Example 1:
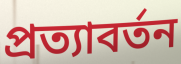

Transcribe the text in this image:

প্ৰত্যাবৰ্তন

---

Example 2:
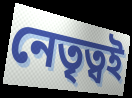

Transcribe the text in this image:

নেতৃত্বই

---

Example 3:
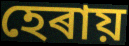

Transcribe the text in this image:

হেৰায়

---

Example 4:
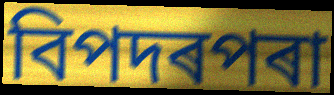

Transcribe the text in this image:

বিপদৰপৰা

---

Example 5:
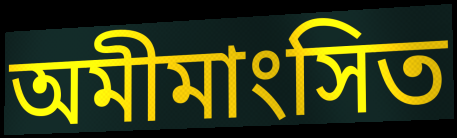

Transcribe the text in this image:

অমীমাংসিত